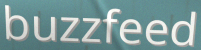
buzzfeed